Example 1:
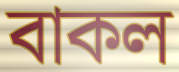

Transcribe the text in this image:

বাকল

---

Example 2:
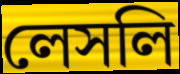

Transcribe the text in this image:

লেসলি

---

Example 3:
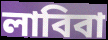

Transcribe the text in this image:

লাবিবা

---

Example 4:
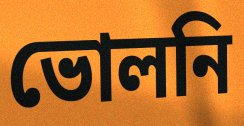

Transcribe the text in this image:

ভোলনি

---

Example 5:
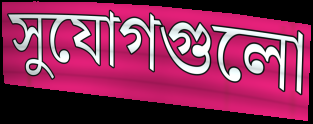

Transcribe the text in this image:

সুযোগগুলো